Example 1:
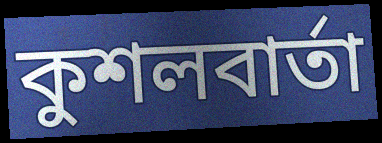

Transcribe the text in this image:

কুশলবার্তা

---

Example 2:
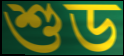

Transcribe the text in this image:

শুড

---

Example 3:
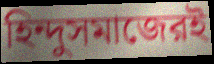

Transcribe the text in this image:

হিন্দুসমাজেরই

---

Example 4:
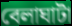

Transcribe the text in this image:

বেলাঘাটা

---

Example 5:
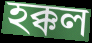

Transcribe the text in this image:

হক্কল